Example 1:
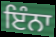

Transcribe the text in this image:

ਇੰਨਾ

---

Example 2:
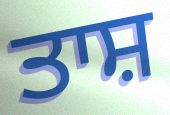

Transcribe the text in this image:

ਤਾਸ਼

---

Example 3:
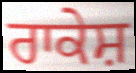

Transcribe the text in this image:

ਰਾਕੇਸ਼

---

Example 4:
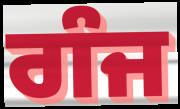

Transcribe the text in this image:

ਗੰਜ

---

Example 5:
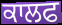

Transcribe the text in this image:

ਕਾਲਫ